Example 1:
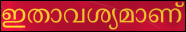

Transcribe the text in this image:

ഇതാവശ്യമാണ്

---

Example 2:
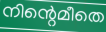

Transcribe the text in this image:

നിന്റെമീതെ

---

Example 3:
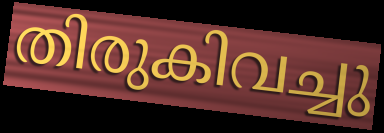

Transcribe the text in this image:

തിരുകിവച്ചു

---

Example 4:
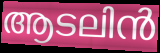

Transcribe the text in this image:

ആടലിൻ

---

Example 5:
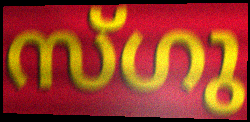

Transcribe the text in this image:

സ്ഗു